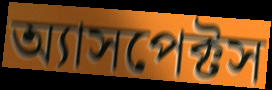
অ্যাসপেক্টস